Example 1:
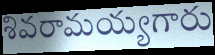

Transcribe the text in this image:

శివరామయ్యగారు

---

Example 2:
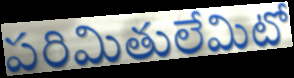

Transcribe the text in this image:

పరిమితులేమిటో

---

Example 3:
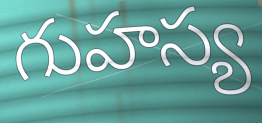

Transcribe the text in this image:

గుహస్య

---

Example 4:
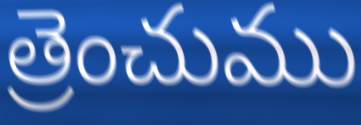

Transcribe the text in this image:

త్రెంచుము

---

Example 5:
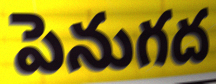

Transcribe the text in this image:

పెనుగద